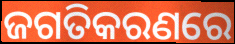
ଜଗତିକରଣରେ